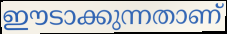
ഈടാക്കുന്നതാണ്